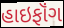
હાઇફૉંગ